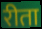
रीता